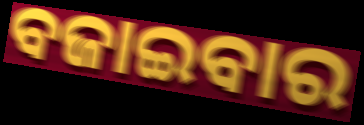
ବଜାଇବାର